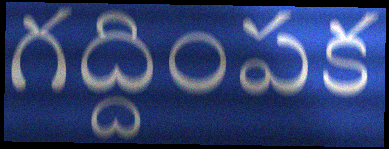
గద్దింపక